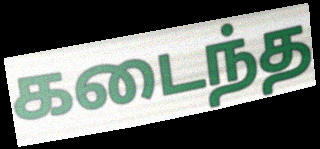
கடைந்த